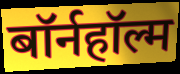
बॉर्नहॉल्म